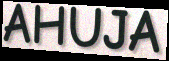
AHUJA